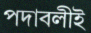
পদাবলীই